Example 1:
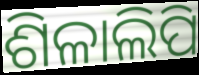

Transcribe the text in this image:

ଶିଳାଲିପି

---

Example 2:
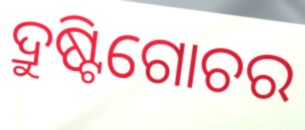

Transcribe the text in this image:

ଦ୍ରୁଷ୍ଟିଗୋଚର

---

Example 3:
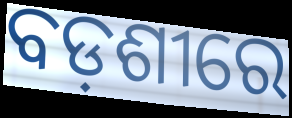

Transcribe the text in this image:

ବଡ଼ଶୀରେ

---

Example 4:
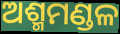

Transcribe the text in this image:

ଅଶ୍ମମଣ୍ଡଳ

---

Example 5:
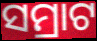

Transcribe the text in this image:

ସମ୍ରାଟ